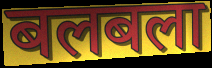
बलबला